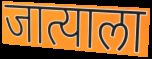
जात्याला